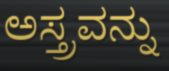
ಅಸ್ತ್ರವನ್ನು